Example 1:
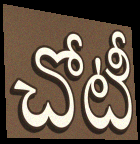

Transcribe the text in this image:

చోటీ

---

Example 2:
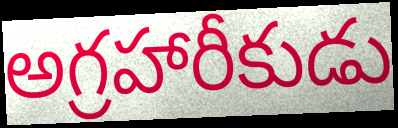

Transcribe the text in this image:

అగ్రహారీకుడు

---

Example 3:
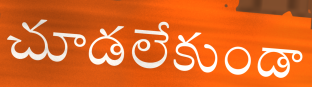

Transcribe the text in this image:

చూడలేకుండా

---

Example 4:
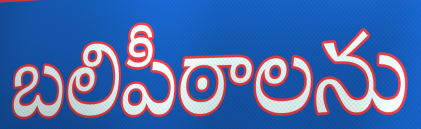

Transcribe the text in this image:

బలిపీఠాలను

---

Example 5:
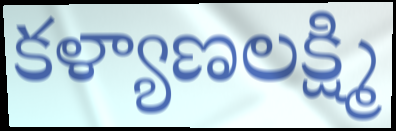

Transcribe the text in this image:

కళ్యాణలక్ష్మి